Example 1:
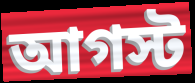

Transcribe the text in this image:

আগস্ট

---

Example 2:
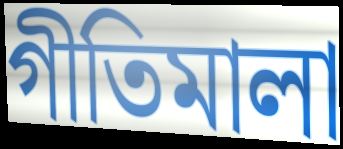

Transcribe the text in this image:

গীতিমালা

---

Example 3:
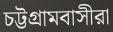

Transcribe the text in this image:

চট্টগ্রামবাসীরা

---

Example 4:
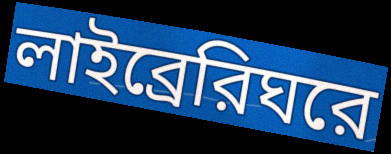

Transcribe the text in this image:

লাইব্রেরিঘরে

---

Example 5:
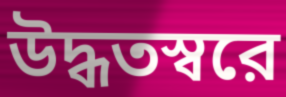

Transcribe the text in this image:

উদ্ধতস্বরে